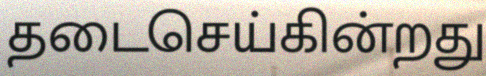
தடைசெய்கின்றது